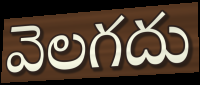
వెలగదు